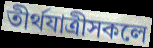
তীৰ্থযাত্ৰীসকলে